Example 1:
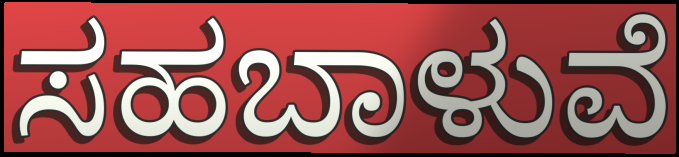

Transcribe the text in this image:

ಸಹಬಾಳುವೆ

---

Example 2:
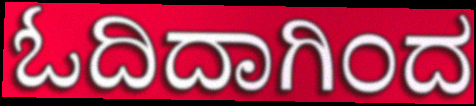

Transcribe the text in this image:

ಓದಿದಾಗಿಂದ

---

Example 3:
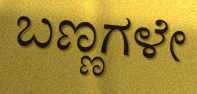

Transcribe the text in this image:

ಬಣ್ಣಗಳೇ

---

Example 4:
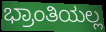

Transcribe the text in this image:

ಭ್ರಾಂತಿಯಲ್ಲ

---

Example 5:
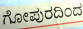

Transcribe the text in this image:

ಗೋಪುರದಿಂದ